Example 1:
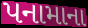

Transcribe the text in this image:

પનામાના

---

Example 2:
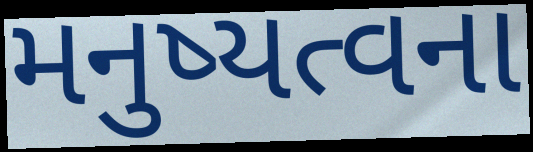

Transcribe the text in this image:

મનુષ્યત્વના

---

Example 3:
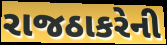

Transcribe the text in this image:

રાજઠાકરેની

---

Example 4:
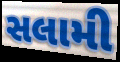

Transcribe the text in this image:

સલામી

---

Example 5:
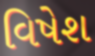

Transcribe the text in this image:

વિષેશ